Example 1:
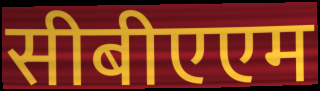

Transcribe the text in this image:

सीबीएएम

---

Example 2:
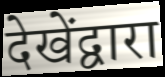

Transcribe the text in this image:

देखेंद्वारा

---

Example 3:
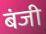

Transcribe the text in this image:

बंजी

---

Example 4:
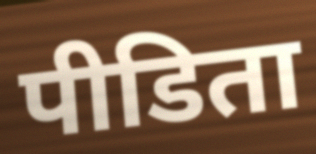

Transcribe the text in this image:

पीडिता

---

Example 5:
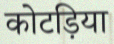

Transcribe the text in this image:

कोटड़िया